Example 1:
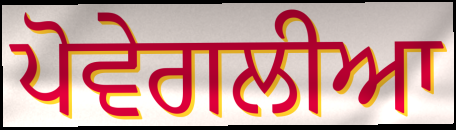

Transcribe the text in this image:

ਪੋਵੇਗਲੀਆ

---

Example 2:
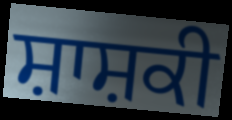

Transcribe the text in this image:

ਸ਼ਾਸ਼ਕੀ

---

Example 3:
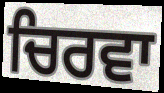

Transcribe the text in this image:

ਚਿਰਵਾ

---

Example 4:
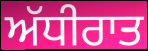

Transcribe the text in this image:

ਅੱਧੀਰਾਤ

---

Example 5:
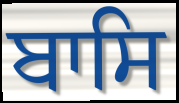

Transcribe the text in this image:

ਬਾਸਿ